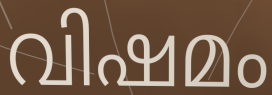
വിഷമം